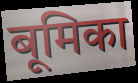
बूमिका